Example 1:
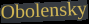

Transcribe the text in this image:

Obolensky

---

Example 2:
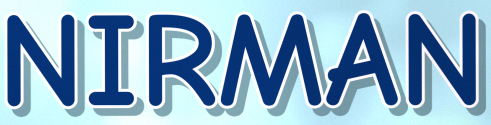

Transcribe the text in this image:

NIRMAN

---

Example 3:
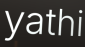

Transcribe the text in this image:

yathi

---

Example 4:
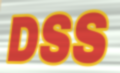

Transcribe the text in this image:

DSS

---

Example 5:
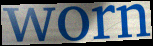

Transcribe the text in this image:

worn